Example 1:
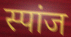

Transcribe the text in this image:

स्पांज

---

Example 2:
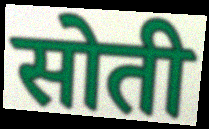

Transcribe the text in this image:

सोती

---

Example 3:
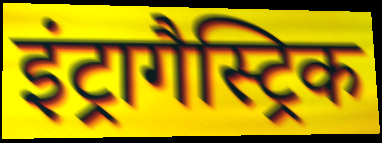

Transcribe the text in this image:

इंट्रागैस्ट्रिक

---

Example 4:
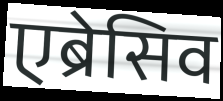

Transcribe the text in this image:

एब्रेसिव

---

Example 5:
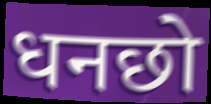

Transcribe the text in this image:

धनछो